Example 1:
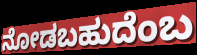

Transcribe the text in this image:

ನೋಡಬಹುದೆಂಬ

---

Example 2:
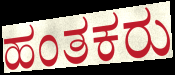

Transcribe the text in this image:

ಹಂತಕರು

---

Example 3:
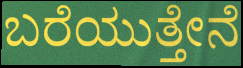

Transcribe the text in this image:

ಬರೆಯುತ್ತೇನೆ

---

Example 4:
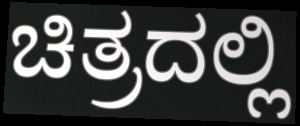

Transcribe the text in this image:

ಚಿತ್ರದಲ್ಲಿ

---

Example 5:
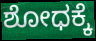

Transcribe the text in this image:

ಶೋಧಕ್ಕೆ